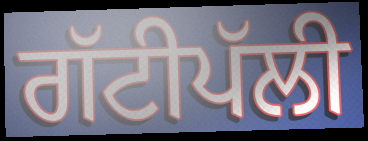
ਗੱਟੀਪੱਲੀ